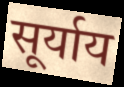
सूर्याय